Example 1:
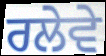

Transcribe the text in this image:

ਰਲੇਵੇ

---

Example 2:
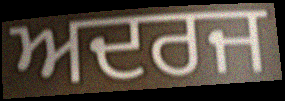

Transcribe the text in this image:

ਅਦਰਜ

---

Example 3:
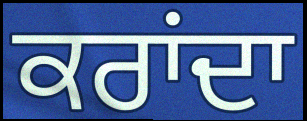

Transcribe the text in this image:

ਕਰਾਂਦਾ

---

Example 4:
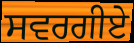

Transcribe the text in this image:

ਸਵਰਗੀਏ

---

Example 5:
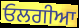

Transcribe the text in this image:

ਓਲਗੀਆ